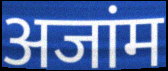
अजांम